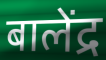
बालेंद्र